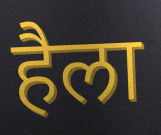
हैला